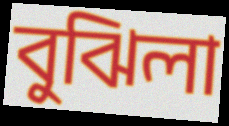
বুঝিলা